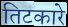
तिटकारे